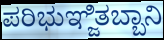
ಪರಿಭುಞ್ಜಿತಬ್ಬಾನಿ